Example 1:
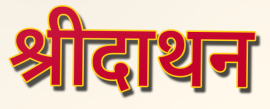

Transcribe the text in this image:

श्रीदाथन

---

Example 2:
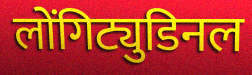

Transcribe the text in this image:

लोंगिट्युडिनल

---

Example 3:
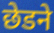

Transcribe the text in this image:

छेडने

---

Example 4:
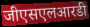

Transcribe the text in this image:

जीएसएलआरडी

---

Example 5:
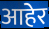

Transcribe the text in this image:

आहेर